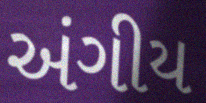
અંગીય